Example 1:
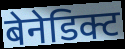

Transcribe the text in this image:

बेनेडिक्ट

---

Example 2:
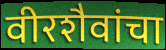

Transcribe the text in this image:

वीरशैवांचा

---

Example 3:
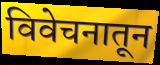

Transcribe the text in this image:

विवेचनातून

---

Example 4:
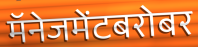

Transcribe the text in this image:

मॅनेजमेंटबरोबर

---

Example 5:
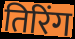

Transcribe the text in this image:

तिरिंग